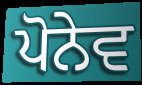
ਪੋਨੇਵ